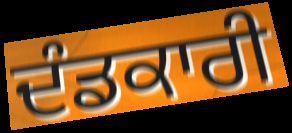
ਦੰਡਕਾਰੀ